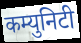
कम्युनिटी